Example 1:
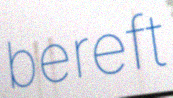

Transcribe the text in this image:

bereft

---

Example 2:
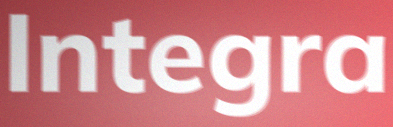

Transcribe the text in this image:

Integra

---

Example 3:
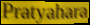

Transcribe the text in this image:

Pratyahara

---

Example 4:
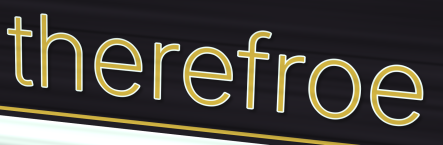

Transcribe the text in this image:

therefroe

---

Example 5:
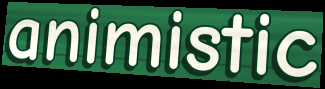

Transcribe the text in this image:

animistic